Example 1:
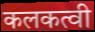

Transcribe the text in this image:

कलकत्वी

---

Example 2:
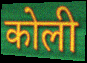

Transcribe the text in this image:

कोली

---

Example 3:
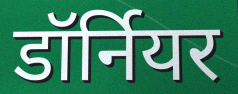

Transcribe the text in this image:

डॉर्नियर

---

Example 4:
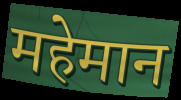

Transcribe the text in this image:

महेमान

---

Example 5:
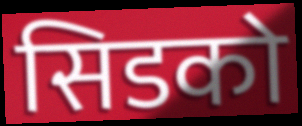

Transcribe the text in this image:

सिडको